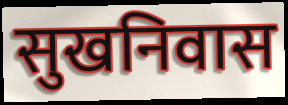
सुखनिवास